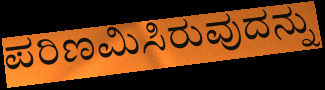
ಪರಿಣಮಿಸಿರುವುದನ್ನು